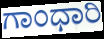
ಗಾಂಧಾರಿ